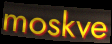
moskve